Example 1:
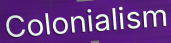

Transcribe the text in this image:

Colonialism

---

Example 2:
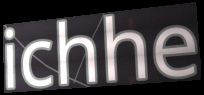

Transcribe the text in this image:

ichhe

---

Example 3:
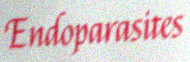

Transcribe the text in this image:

Endoparasites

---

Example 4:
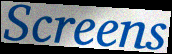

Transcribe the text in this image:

Screens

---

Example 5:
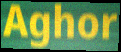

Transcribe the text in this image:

Aghor